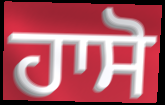
ਹਾਸੋ